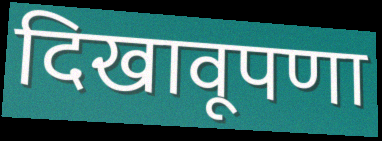
दिखावूपणा